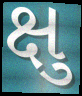
ક્ષુ